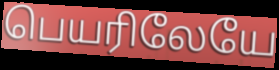
பெயரிலேயே